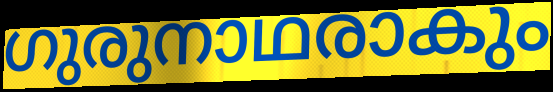
ഗുരുനാഥരാകും